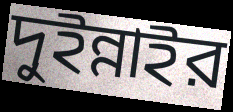
দুইন্নাইর